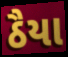
ઠૈયા